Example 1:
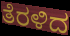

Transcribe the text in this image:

ತೆರಳಿದ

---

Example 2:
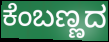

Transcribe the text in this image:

ಕೆಂಬಣ್ಣದ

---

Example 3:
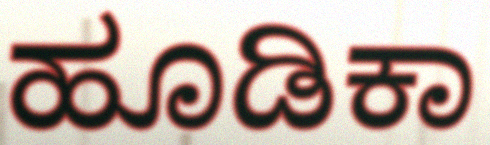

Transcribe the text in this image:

ಹೂಡಿಕಾ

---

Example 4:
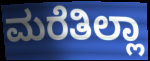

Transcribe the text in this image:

ಮರೆತಿಲ್ಲಾ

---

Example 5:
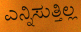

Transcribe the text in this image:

ಎನ್ನಿಸುತ್ತಿಲ್ಲ